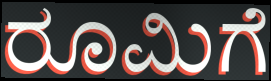
ರೂಮಿಗೆ